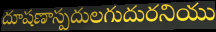
దూషణాస్పదులగుదురనియు